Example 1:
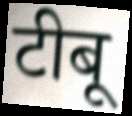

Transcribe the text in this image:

टीबू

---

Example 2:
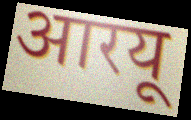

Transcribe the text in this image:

आरयू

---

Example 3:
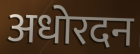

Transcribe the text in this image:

अधोरदन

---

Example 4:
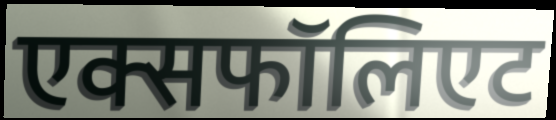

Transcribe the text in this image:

एक्सफॉलिएट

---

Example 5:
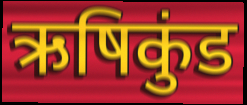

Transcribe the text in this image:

ऋषिकुंड